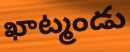
ఖాట్మండు